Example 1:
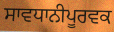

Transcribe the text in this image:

ਸਾਵਧਾਨੀਪੂਰਵਕ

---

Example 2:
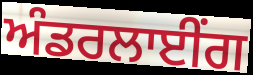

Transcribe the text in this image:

ਅੰਡਰਲਾਈੰਗ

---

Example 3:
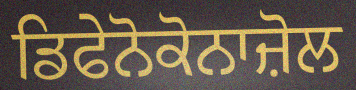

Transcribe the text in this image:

ਡਿਫੇਨੋਕੋਨਾਜ਼ੋਲ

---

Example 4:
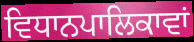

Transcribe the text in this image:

ਵਿਧਾਨਪਾਲਿਕਾਵਾਂ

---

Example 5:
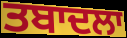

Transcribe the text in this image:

ਤਬਾਦਲਾ